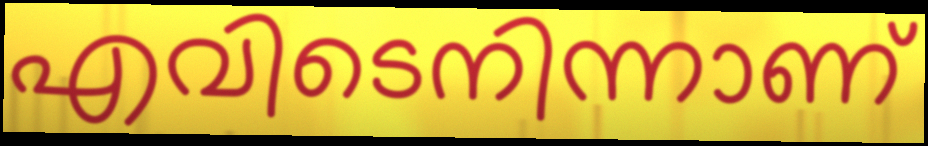
എവിടെനിന്നാണ്